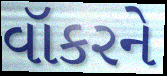
વૉકરને